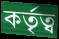
কৰ্তৃত্ব